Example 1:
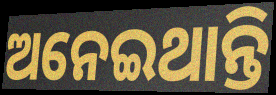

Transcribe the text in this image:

ଅନେଇଥାନ୍ତି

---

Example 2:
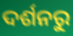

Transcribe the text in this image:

ଦର୍ଶନରୁ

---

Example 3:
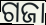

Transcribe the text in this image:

ଗଜା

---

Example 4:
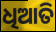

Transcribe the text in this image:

ଧିଆତି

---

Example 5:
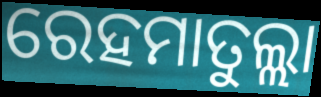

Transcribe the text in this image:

ରେହମାତୁଲ୍ଲା